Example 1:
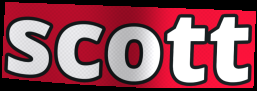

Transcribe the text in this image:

scott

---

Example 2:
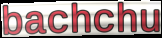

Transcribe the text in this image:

bachchu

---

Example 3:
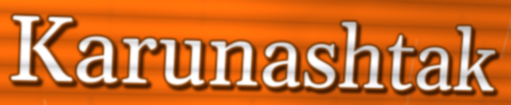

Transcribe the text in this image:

Karunashtak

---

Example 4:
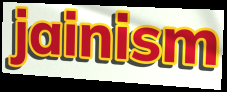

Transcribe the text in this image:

jainism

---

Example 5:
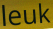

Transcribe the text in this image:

leuk